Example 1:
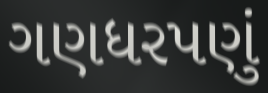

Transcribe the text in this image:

ગણધરપણું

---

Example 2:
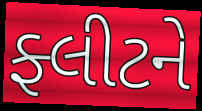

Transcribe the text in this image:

ફ્લીટને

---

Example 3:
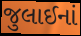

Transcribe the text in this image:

જુલાઈનાં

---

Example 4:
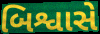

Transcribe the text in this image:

બિશ્વાસે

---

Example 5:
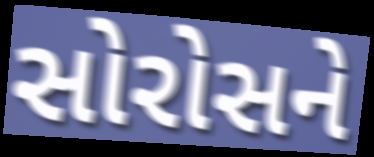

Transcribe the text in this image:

સોરોસને